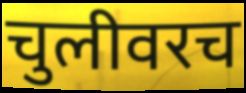
चुलीवरच